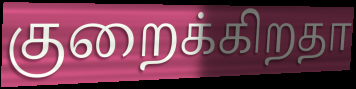
குறைக்கிறதா